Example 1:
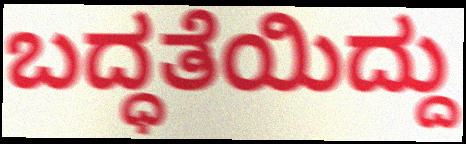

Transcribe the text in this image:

ಬದ್ಧತೆಯಿದ್ದು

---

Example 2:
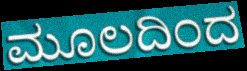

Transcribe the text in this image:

ಮೂಲದಿಂದ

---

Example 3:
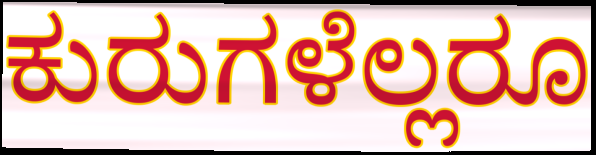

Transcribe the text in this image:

ಕುರುಗಳೆಲ್ಲರೂ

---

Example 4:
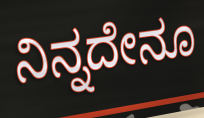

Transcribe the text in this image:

ನಿನ್ನದೇನೂ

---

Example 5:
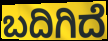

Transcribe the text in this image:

ಬದಿಗಿದೆ